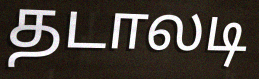
தடாலடி